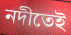
নদীতেই